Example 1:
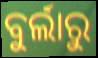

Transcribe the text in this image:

ବୁର୍ଲାରୁ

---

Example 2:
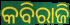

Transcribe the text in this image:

କବିରାଜି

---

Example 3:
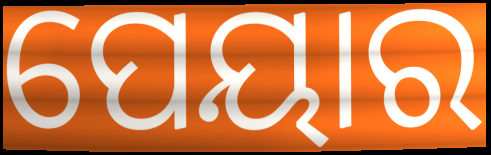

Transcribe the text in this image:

ପେୟାର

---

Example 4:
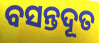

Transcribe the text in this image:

ବସନ୍ତଦୂତ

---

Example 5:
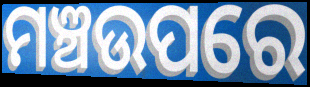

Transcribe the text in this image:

ମଞ୍ଚଉପରେ